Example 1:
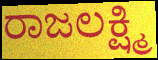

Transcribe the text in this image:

ರಾಜಲಕ್ಷ್ಮಿ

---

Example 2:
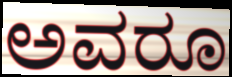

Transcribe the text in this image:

ಅವರೂ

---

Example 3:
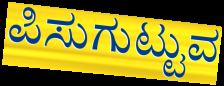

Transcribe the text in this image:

ಪಿಸುಗುಟ್ಟುವ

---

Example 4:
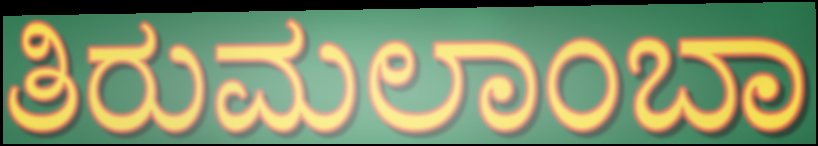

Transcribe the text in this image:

ತಿರುಮಲಾಂಬಾ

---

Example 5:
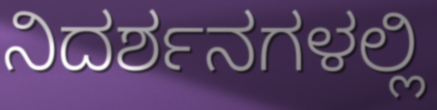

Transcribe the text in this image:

ನಿದರ್ಶನಗಳಲ್ಲಿ